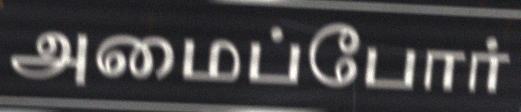
அமைப்போர்